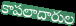
కాపలాదారుల